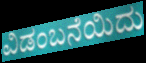
ವಿಡಂಬನೆಯಿದು